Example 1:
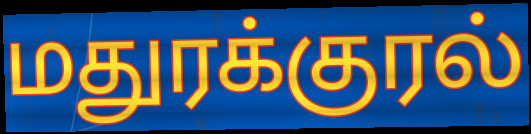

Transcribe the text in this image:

மதுரக்குரல்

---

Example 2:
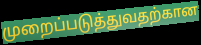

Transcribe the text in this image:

முறைப்படுத்துவதற்கான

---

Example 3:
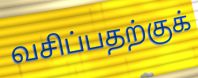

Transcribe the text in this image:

வசிப்பதற்குக்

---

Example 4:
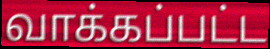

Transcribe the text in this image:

வாக்கப்பட்ட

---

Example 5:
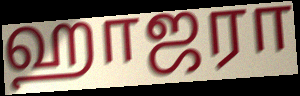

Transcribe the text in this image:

ஹாஜரா